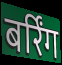
बर्रिंग